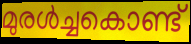
മുരൾച്ചകൊണ്ട്